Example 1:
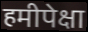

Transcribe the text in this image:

हमीपेक्षा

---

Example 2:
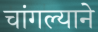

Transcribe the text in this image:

चांगल्याने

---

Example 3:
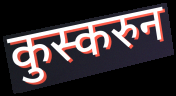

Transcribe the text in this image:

कुस्करुन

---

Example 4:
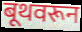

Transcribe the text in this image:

बूथवरून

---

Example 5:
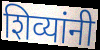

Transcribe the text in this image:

शिव्यांनी